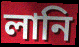
লানি